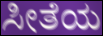
ಸೀತೆಯ